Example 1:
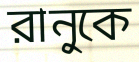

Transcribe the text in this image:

রানুকে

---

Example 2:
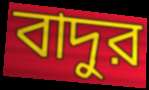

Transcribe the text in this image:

বাদুর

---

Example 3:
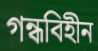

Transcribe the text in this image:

গন্ধবিহীন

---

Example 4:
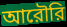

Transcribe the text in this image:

আরৌরি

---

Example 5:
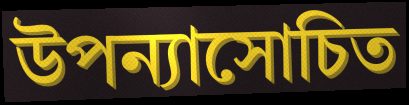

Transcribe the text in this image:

উপন্যাসোচিত